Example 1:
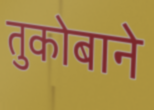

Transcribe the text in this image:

तुकोबाने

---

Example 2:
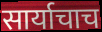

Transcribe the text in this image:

सार्याचाच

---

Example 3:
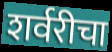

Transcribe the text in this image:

शर्वरीचा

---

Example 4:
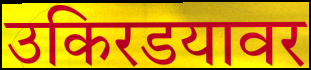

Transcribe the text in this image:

उकिरडयावर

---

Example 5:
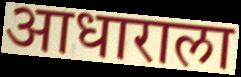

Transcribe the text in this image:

आधाराला